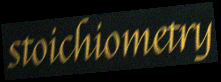
stoichiometry